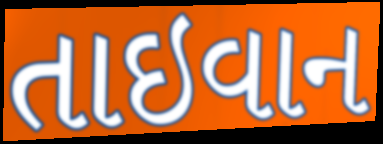
તાઇવાન